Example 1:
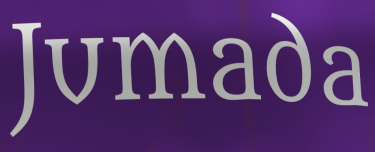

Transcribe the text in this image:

Jumada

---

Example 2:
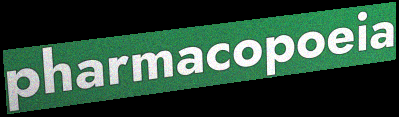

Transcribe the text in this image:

pharmacopoeia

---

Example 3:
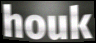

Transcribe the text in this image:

houk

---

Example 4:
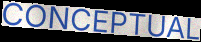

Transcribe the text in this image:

CONCEPTUAL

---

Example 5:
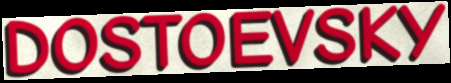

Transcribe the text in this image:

DOSTOEVSKY